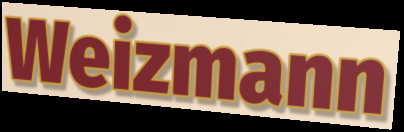
Weizmann